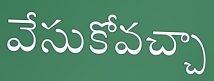
వేసుకోవచ్చా